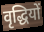
वृद्धियों